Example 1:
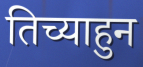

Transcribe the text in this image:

तिच्याहुन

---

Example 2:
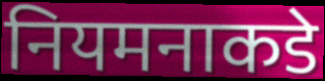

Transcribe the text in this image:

नियमनाकडे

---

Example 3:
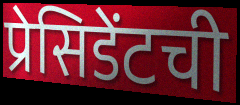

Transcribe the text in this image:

प्रेसिडेंटची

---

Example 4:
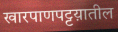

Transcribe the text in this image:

खारपाणपट्टय़ातील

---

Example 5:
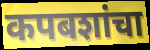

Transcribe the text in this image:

कपबशांचा